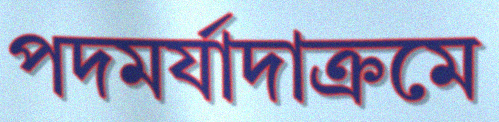
পদমর্যাদাক্রমে